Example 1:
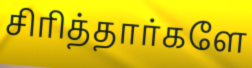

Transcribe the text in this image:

சிரித்தார்களே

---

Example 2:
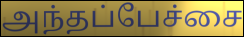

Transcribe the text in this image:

அந்தப்பேச்சை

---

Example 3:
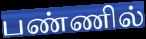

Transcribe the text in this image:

பண்ணில்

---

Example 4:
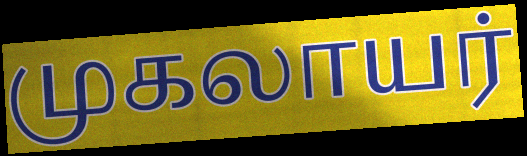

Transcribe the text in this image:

முகலாயர்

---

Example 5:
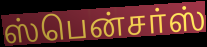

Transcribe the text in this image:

ஸ்பென்சர்ஸ்